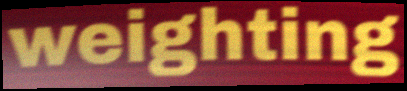
weighting